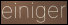
einiger